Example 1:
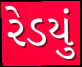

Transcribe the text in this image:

રેડયું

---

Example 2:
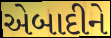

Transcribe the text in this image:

એબાદીને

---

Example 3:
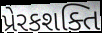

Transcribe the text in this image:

પ્રેરકશક્તિ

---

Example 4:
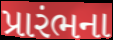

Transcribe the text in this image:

પ્રારંભના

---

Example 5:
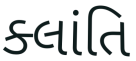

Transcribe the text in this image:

ક્લાંતિ